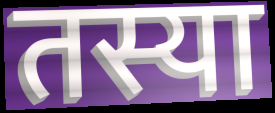
तस्या